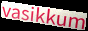
vasikkum